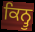
ਕਿਨ੍ਤੁ